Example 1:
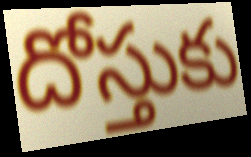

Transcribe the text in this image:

దోస్తుకు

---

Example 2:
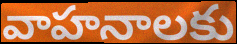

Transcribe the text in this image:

వాహనాలకు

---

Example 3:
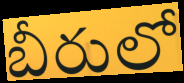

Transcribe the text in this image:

బీరులో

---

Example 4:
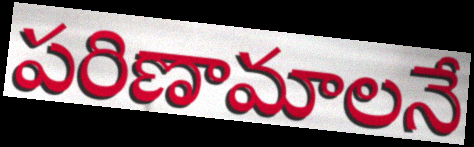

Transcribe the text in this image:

పరిణామాలనే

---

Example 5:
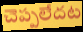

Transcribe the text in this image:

చెప్పలేదట